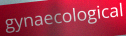
gynaecological